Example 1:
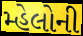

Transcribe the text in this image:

મ્હેલોની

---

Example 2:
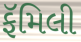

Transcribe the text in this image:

ફૅમિલી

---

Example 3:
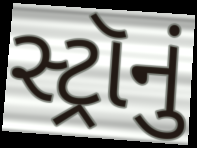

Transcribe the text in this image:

સ્ટ્રૉનું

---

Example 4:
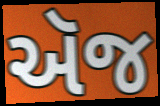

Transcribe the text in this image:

ઍજ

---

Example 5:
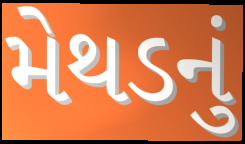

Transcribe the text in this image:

મેથડનું